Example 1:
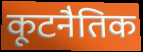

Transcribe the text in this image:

कूटनैतिक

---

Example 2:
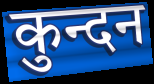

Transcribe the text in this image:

कुन्दन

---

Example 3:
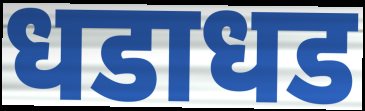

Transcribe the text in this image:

धडाधड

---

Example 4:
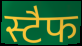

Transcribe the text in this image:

स्टैफ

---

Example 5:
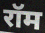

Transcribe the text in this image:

रॉम